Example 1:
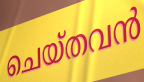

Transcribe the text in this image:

ചെയ്തവൻ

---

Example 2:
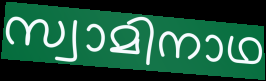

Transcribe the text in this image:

സ്വാമിനാഥ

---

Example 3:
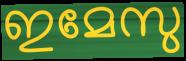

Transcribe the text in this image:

ഇമേസു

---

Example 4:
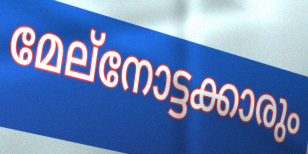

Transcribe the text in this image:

മേല്നോട്ടക്കാരും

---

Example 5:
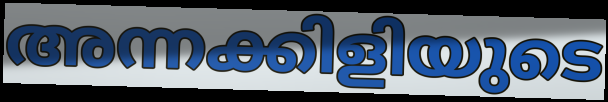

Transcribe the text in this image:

അന്നക്കിളിയുടെ